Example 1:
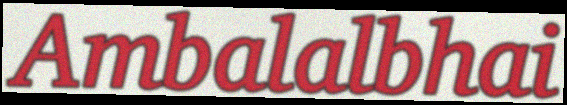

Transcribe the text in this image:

Ambalalbhai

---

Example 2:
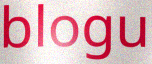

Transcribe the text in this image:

blogu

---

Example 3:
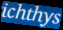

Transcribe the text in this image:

ichthys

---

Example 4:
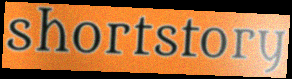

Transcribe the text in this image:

shortstory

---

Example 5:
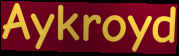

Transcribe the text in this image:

Aykroyd